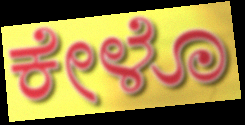
ಕೇಳೊ